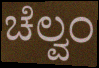
ಚೆಲ್ವಂ